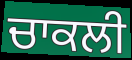
ਚਾਕਲੀ